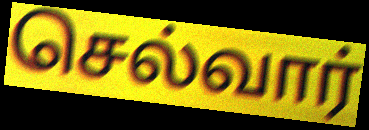
செல்வார்